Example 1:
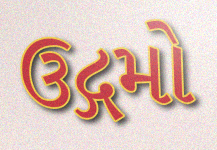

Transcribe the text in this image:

ઉદ્ગમો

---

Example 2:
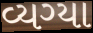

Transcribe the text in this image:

વ્યગ્યા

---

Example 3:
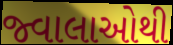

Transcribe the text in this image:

જ્વાલાઓથી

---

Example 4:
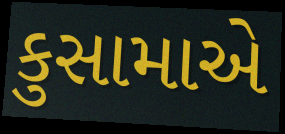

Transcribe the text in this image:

કુસામાએ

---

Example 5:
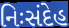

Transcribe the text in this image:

નિઃસંદેહ